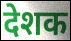
देशक